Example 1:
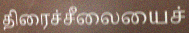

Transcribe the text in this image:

திரைச்சீலையைச்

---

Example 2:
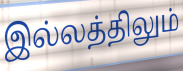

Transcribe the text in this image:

இல்லத்திலும்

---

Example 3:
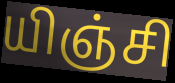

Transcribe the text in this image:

யிஞ்சி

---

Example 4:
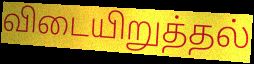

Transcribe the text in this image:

விடையிறுத்தல்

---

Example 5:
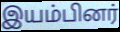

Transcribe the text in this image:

இயம்பினர்